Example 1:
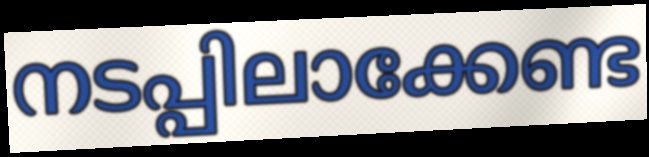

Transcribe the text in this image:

നടപ്പിലാക്കേണ്ട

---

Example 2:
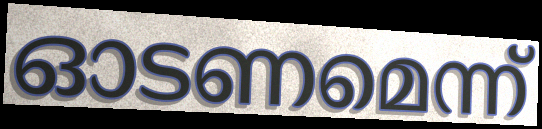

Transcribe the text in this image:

ഓടണമെന്ന്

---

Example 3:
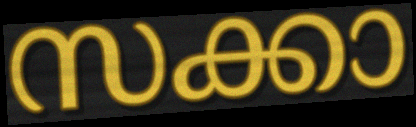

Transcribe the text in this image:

സക്കാ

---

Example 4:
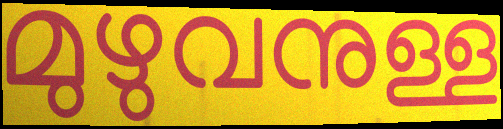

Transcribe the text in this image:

മുഴുവനുള്ള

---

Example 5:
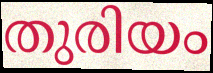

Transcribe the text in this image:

തുരിയം